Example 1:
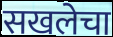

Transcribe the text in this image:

सखलेचा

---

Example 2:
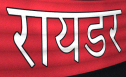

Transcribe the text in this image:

रायडर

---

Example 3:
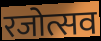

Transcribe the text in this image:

रजोत्सव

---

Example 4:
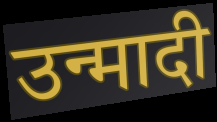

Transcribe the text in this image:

उन्मादी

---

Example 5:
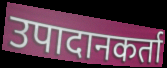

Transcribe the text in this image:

उपादानकर्ता